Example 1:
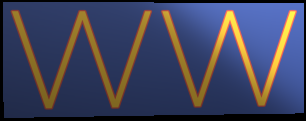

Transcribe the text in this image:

WW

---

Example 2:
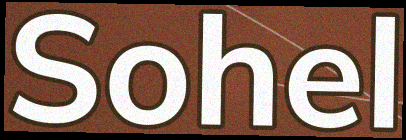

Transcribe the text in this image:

Sohel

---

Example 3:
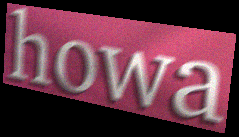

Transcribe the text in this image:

howa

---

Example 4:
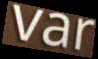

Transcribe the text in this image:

var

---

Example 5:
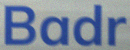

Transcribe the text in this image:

Badr